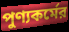
পুণ্যকর্মের